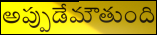
అప్పుడేమౌతుంది